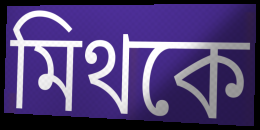
মিথকে